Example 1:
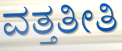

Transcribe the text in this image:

ವತ್ತತೀತಿ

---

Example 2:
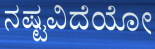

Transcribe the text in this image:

ನಷ್ಟವಿದೆಯೋ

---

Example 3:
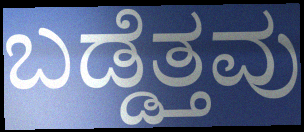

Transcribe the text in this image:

ಬಡ್ಡೆತ್ತವು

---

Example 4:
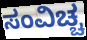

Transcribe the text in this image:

ಸಂವಿಚ್ಚ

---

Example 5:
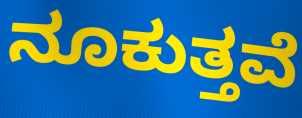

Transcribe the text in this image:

ನೂಕುತ್ತವೆ